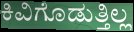
ಕಿವಿಗೊಡುತ್ತಿಲ್ಲ